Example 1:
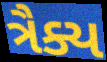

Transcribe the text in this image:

ત્રૈક્ય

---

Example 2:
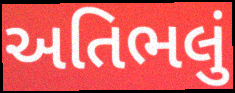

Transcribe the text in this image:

અતિભલું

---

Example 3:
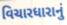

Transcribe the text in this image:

વિચારધારાનું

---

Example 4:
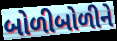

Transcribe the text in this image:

બોળીબોળીને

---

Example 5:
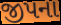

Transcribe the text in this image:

જીપના